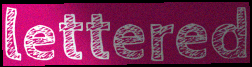
lettered